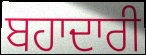
ਬਹਾਦਾਰੀ